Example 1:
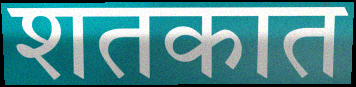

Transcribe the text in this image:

शतकात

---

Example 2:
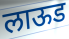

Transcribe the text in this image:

लाऊड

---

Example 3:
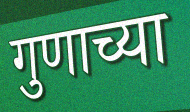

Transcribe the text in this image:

गुणाच्या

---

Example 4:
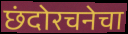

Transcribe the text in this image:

छंदोरचनेचा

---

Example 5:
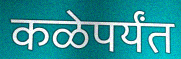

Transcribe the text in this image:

कळेपर्यंत